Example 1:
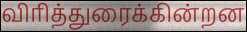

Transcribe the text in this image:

விரித்துரைக்கின்றன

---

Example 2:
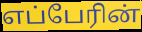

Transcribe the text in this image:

எப்பேரின்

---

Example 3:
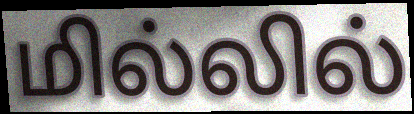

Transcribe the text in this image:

மில்லில்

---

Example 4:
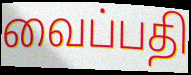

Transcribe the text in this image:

வைப்பதி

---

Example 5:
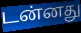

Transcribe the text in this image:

டன்னது